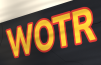
WOTR